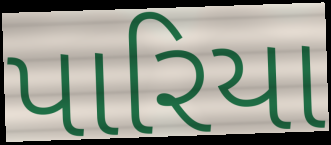
પારિયા